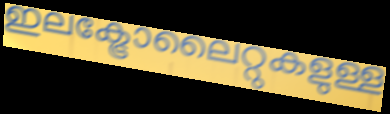
ഇലക്ട്രോലൈറ്റുകളുള്ള